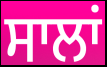
ਸਾਲਾਂ